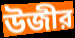
উজীর